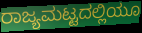
ರಾಜ್ಯಮಟ್ಟದಲ್ಲಿಯೂ